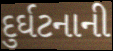
દુર્ઘટનાની